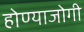
होण्याजोगी